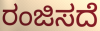
ರಂಜಿಸದೆ